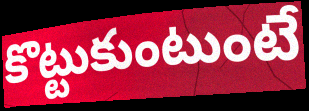
కొట్టుకుంటుంటే